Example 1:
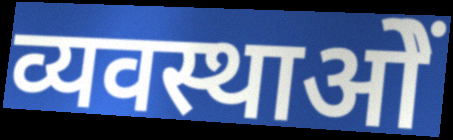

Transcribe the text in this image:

व्यवस्थाओें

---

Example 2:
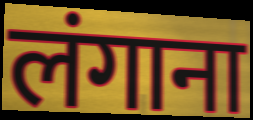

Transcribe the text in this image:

लंगाना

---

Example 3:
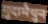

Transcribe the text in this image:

गुदामैथुन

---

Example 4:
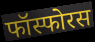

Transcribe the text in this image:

फॉस्फोरस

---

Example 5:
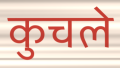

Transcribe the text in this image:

कुचले